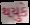
થયુકે